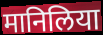
मानिलिया